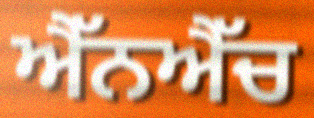
ਐੱਨਐੱਚ